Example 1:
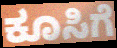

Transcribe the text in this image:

ಕೂಸಿಗೆ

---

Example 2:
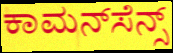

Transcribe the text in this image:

ಕಾಮನ್‌ಸೆನ್ಸ್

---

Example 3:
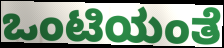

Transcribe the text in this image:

ಒಂಟಿಯಂತೆ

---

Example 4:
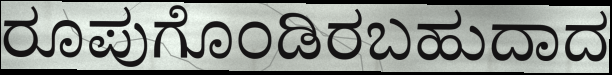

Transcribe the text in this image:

ರೂಪುಗೊಂಡಿರಬಹುದಾದ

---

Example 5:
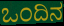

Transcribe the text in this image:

ಒಂದಿನ